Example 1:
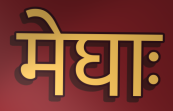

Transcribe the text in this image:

मेघाः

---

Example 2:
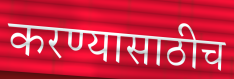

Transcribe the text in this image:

करण्यासाठीच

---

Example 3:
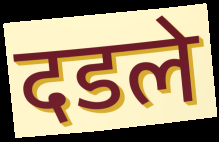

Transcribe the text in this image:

दडले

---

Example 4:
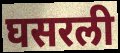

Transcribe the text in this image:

घसरली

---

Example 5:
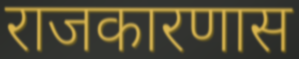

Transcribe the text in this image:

राजकारणास